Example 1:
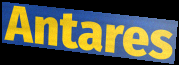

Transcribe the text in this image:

Antares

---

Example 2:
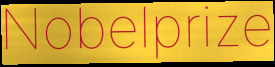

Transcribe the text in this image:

Nobelprize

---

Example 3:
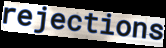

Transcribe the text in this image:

rejections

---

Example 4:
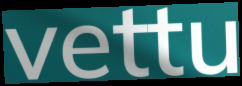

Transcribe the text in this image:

vettu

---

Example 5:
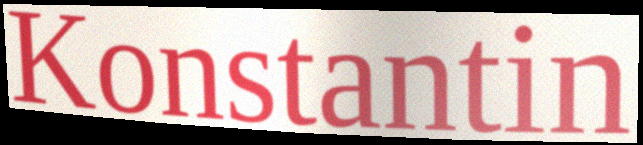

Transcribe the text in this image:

Konstantin